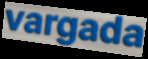
vargada